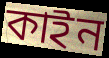
কাইন